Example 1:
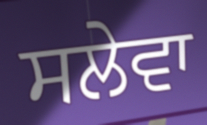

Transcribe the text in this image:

ਸਲੇਵਾ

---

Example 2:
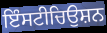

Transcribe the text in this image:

ਇੰਸਟੀਚਿਉਸ਼ਨ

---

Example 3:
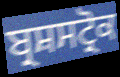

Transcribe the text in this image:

ਬ੍ਰਸ਼ਸਟ੍ਰੋਕ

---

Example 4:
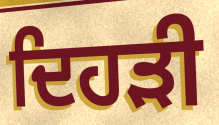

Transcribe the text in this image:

ਦਿਹੜੀ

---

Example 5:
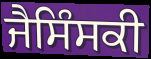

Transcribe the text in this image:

ਜੈਸਿੰਸਕੀ